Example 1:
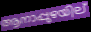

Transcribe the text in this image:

ആനാപ്പുഴയില്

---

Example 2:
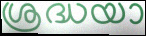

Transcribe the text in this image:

ശ്രദ്ധയാ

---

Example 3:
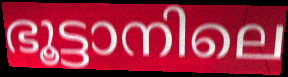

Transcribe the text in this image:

ഭൂട്ടാനിലെ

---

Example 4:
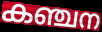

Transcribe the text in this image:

കഞ്ചന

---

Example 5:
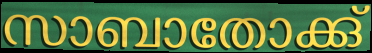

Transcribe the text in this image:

സാബാതോക്കു്